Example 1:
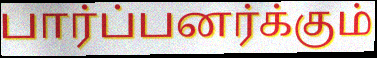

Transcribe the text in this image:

பார்ப்பனர்க்கும்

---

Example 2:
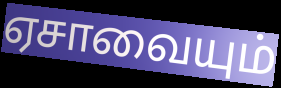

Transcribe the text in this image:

ஏசாவையும்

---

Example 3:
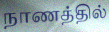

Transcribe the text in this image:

நாணத்தில்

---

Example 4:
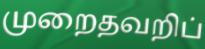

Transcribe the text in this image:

முறைதவறிப்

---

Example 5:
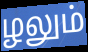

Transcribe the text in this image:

ழலும்